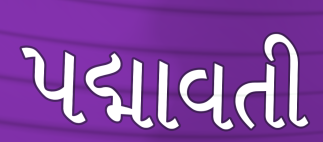
પદ્માવતી